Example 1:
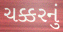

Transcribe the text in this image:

ચક્કરનું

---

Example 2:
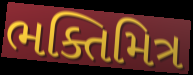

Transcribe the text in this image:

ભક્તિમિત્ર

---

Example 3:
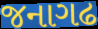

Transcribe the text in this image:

જનાગઢ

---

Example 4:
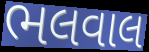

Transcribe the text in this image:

ભલવાલ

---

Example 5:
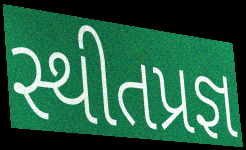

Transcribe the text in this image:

સ્થીતપ્રજ્ઞ